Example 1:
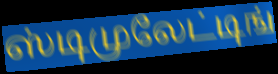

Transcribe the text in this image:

ஸ்டிமுலேட்டிங்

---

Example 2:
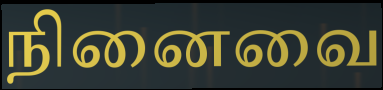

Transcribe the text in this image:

நினைவை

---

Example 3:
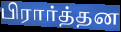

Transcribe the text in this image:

பிரார்த்தன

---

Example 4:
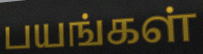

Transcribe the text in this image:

பயங்கள்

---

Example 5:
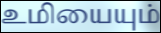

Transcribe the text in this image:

உமியையும்